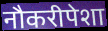
नौकरीपेशा